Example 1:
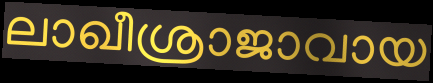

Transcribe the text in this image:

ലാഖീശ്രാജാവായ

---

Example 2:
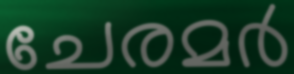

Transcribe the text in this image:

ചേരമർ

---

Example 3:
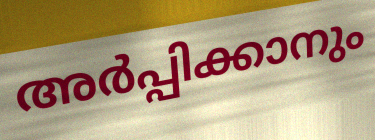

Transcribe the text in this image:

അർപ്പിക്കാനും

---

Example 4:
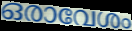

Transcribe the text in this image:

ഒരാവേശം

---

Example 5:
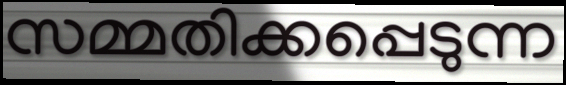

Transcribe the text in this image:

സമ്മതിക്കപ്പെടുന്ന